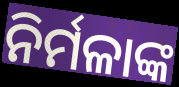
ନିର୍ମଳାଙ୍କ